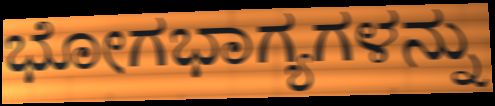
ಭೋಗಭಾಗ್ಯಗಳನ್ನು